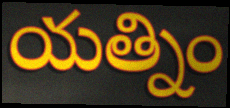
యత్నిం